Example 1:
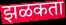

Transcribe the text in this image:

झळकता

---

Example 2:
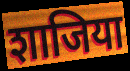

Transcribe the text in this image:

शाजिया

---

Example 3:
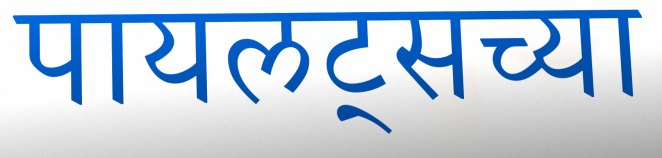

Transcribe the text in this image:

पायलट्सच्या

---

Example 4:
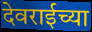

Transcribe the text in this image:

देवराईच्या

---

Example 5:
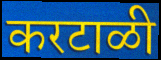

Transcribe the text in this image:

करटाळी